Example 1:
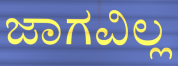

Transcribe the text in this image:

ಜಾಗವಿಲ್ಲ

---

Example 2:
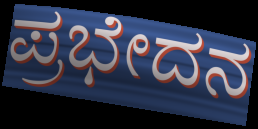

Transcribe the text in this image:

ಪ್ರಭೇದನ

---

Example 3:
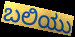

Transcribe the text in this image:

ಬಲಿಯು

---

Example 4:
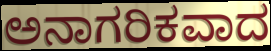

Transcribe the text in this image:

ಅನಾಗರಿಕವಾದ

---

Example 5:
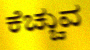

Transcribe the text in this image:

ಕೆಚ್ಚುವ